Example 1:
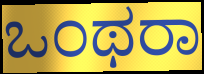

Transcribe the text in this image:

ಒಂಥರಾ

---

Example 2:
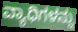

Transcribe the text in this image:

ವ್ಯಾಧಿಗಳನ್ನು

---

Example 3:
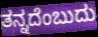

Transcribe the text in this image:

ತನ್ನದೆಂಬುದು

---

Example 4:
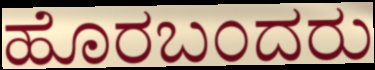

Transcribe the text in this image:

ಹೊರಬಂದರು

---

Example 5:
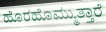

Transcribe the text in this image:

ಹೊರಹೊಮ್ಮುತ್ತಾರೆ